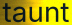
taunt